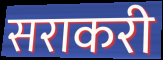
सराकरी